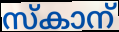
സ്കാന്